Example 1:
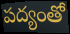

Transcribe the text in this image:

పద్యంతో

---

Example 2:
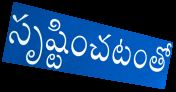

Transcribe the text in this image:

సృష్టించటంతో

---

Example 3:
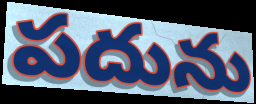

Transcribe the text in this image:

పదును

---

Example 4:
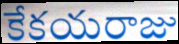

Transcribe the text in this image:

కేకయరాజు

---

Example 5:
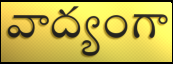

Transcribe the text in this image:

వాద్యంగా